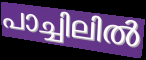
പാച്ചിലിൽ